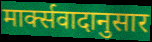
मार्क्सवादानुसार